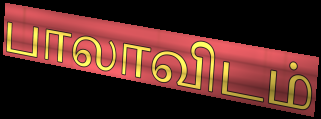
பாலாவிடம்